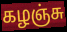
கழஞ்சு